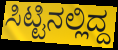
ಸಿಟ್ಟಿನಲ್ಲಿದ್ದ